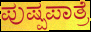
ಪುಷ್ಪಪಾತ್ರೆ